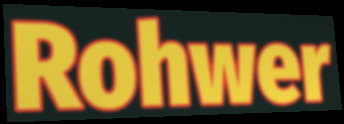
Rohwer